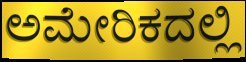
ಅಮೇರಿಕದಲ್ಲಿ